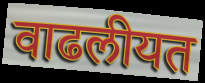
वाढलीयत